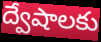
ద్వేషాలకు